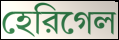
হেরিগেল